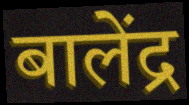
बालेंद्र